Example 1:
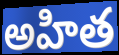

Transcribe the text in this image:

అహిత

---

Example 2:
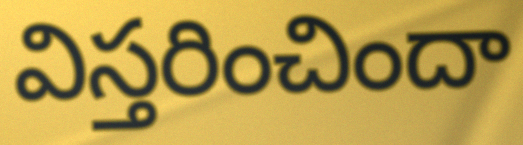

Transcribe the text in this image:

విస్తరించిందా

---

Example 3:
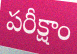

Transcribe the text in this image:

పరీక్షాం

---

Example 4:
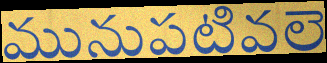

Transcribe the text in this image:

మునుపటివలె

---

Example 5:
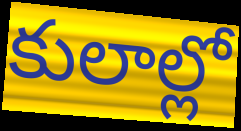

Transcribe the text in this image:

కులాల్లో